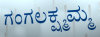
ಗಂಗಲಕ್ಷ್ಮಮ್ಮ